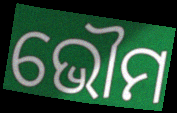
ଭୌମ